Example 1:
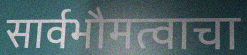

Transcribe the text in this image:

सार्वभौमत्वाचा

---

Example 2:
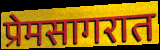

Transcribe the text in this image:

प्रेमसागरात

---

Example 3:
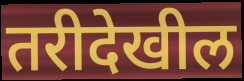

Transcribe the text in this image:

तरीदेखील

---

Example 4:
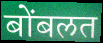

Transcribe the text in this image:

बोंबलत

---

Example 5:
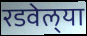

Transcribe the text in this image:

रडवेल्या